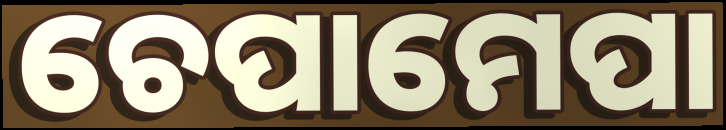
ଚେପାମେପା